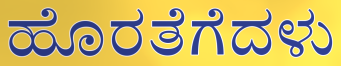
ಹೊರತೆಗೆದಳು